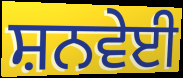
ਸ਼ਨਵੇਈ